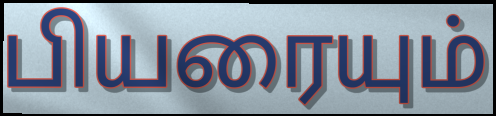
பியரையும்